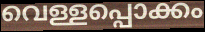
വെള്ളപ്പൊക്കം